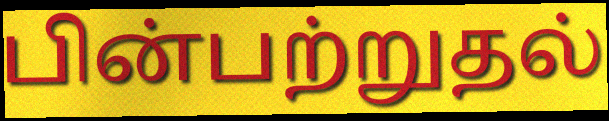
பின்பற்றுதல்